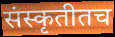
संस्कृतीतच